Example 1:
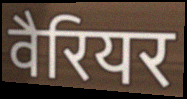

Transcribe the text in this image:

वैरियर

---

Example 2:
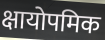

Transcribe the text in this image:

क्षायोपमिक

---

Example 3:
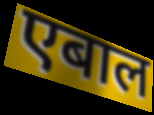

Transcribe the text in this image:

एबाल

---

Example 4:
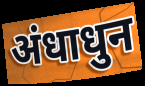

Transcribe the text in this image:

अंधाधुन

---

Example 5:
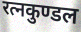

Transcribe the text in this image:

रत्नकुण्डल